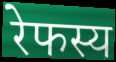
रेफस्य